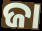
ଜା